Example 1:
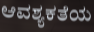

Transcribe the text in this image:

ಆವಶ್ಯಕತೆಯ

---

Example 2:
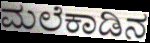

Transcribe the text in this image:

ಮಲೆಕಾಡಿನ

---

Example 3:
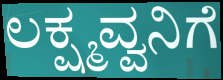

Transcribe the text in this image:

ಲಕ್ಷ್ಮವ್ವನಿಗೆ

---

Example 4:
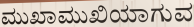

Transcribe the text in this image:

ಮುಖಾಮುಖಿಯಾಗುವ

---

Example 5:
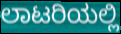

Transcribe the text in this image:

ಲಾಟರಿಯಲ್ಲಿ